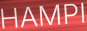
HAMPI